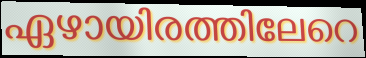
ഏഴായിരത്തിലേറെ